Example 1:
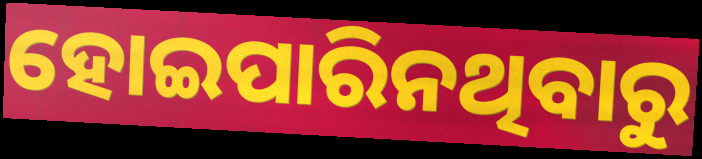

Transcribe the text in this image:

ହୋଇପାରିନଥିବାରୁ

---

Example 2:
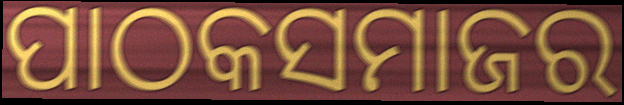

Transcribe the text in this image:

ପାଠକସମାଜର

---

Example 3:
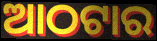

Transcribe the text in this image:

ଆଠଟାର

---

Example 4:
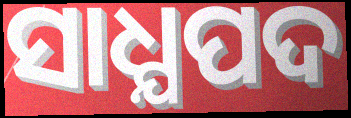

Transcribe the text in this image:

ସାଧ୍ଯପଦ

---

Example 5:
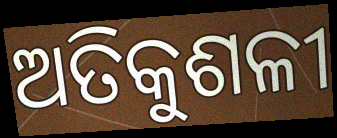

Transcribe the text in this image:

ଅତିକୁଶଳୀ